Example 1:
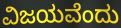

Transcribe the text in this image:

ವಿಜಯವೆಂದು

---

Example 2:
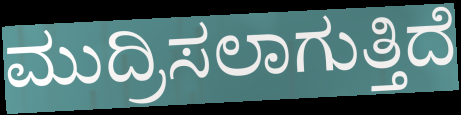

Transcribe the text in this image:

ಮುದ್ರಿಸಲಾಗುತ್ತಿದೆ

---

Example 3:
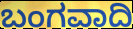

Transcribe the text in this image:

ಬಂಗವಾದಿ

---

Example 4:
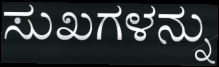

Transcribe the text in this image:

ಸುಖಗಳನ್ನು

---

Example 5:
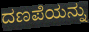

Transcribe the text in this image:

ದಣಪೆಯನ್ನು